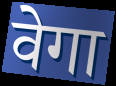
वेगा